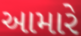
આમારે